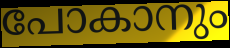
പോകാനും